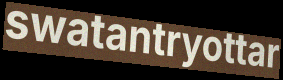
swatantryottar